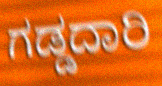
ಗಡ್ಡದಾರಿ